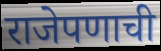
राजेपणाची